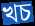
খচ